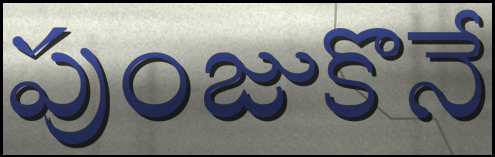
పుంజుకొనే